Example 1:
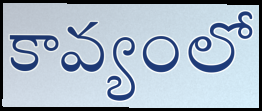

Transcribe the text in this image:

కావ్యంలో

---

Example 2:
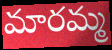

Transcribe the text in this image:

మారమ్మ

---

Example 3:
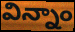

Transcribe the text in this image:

విన్నాం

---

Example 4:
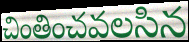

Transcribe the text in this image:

చింతించవలసిన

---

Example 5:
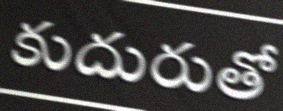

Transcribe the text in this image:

కుదురుతో